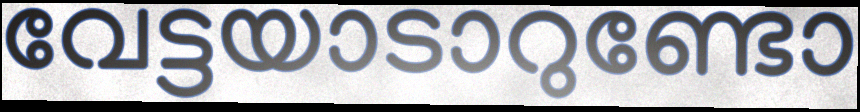
വേട്ടയാടാറുണ്ടോ